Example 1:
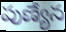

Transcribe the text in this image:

పుణ్యేన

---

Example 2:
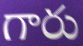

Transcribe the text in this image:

గారు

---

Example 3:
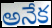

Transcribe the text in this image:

అనేక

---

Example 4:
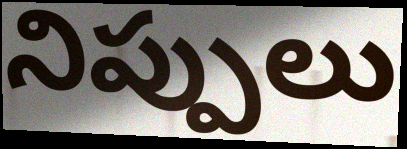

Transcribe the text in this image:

నిప్పులు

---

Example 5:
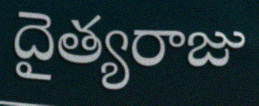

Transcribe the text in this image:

దైత్యరాజు